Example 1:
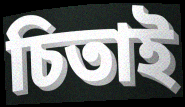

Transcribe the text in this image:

চিতাই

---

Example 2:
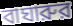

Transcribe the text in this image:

বাঘারুর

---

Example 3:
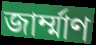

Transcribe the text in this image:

জার্ম্মাণ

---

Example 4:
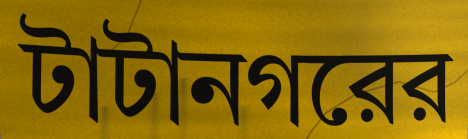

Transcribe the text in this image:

টাটানগরের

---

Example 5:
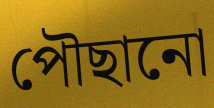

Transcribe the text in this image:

পৌছানো